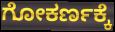
ಗೋಕರ್ಣಕ್ಕೆ